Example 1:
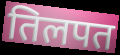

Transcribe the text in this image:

तिलपत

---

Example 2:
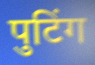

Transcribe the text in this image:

पुटिंग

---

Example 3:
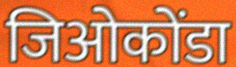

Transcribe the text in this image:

जिओकोंडा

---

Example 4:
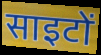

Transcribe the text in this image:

साइटों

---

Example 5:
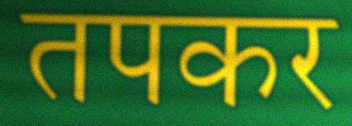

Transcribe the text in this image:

तपकर